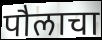
पौलाचा